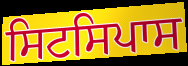
ਸਿਟਸਿਪਾਸ